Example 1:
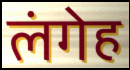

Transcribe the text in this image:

लंगेह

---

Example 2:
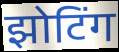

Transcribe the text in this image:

झोटिंग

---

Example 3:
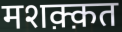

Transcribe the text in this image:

मशक़्क़त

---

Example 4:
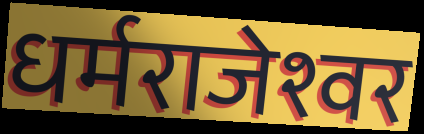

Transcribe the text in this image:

धर्मराजेश्वर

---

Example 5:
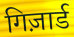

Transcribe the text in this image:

गिज़ार्ड